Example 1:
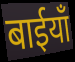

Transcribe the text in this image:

बाईयाँ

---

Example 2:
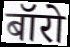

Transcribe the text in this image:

बॉरो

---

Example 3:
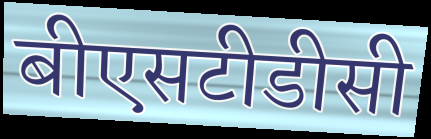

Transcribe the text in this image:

बीएसटीडीसी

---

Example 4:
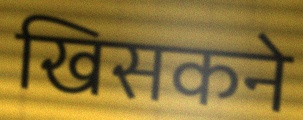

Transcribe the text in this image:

खिसकने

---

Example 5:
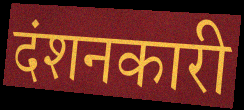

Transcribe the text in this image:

दंशनकारी